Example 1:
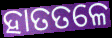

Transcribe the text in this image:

ହାତତଳେ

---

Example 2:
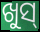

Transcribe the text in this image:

ଖୁସ୍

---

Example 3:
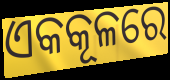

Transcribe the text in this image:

ଏକକୂଳରେ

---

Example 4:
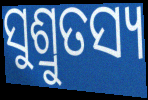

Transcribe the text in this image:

ସୁଶ୍ରୁତସ୍ୟ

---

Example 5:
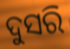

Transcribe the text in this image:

ଦୁସରି